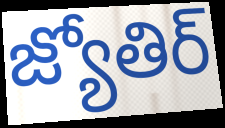
జ్యోతిర్